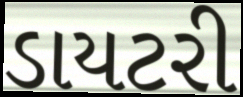
ડાયટરી